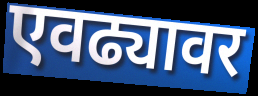
एवढ्यावर